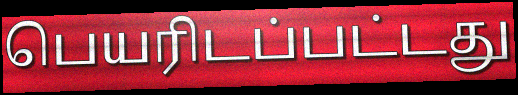
பெயரிடப்பட்டது